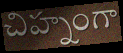
చిహ్నంగా